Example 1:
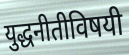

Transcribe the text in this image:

युद्धनीतीविषयी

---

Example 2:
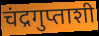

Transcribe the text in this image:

चंद्रगुप्ताशी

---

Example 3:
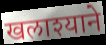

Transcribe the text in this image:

खलाश्याने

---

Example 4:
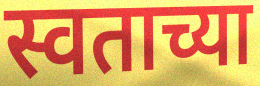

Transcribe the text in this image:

स्वताच्या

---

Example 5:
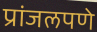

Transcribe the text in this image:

प्रांजलपणे